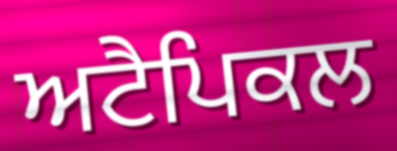
ਅਟੈਪਿਕਲ